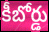
కీబోర్డు